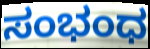
ಸಂಭಂಧ